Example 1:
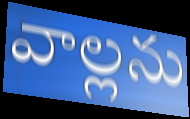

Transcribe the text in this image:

వాల్లను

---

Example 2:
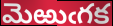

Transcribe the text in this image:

మెఱుఁగక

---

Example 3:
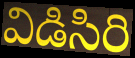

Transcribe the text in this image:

విడిసిరి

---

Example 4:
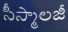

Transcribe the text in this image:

సీస్మాలజీ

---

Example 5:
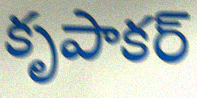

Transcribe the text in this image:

కృపాకర్